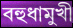
বহুধামুখী